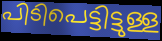
പിടിപെട്ടിട്ടുള്ള